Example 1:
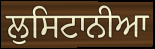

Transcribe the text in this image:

ਲੁਸਿਟਾਨੀਆ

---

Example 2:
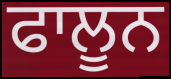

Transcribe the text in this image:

ਫਾਲੂਨ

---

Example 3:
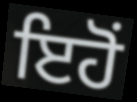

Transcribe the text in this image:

ਇਹੋਂ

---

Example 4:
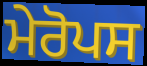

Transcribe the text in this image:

ਮੇਰੋਪਸ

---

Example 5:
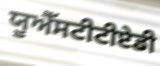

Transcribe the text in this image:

ਯੂਐੱਸਟੀਟੀਏਡੀ